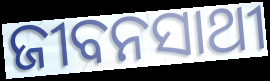
ଜୀବନସାଥୀ